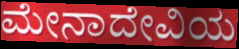
ಮೇನಾದೇವಿಯ